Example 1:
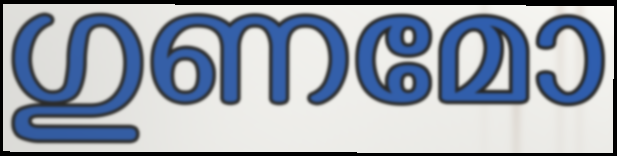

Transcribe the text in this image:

ഗുണമോ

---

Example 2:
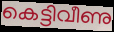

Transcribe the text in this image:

കെട്ടിവീണു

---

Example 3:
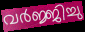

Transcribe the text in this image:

വർജ്ജിച്ചു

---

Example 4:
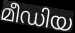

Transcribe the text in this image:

മീഡിയ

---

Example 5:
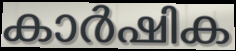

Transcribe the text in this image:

കാർഷിക